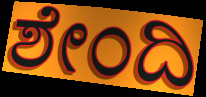
ಶೇಂದಿ